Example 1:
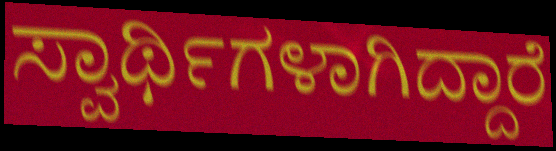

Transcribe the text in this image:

ಸ್ವಾರ್ಥಿಗಳಾಗಿದ್ದಾರೆ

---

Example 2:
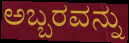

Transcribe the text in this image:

ಅಬ್ಬರವನ್ನು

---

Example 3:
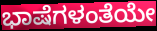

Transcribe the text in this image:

ಭಾಷೆಗಳಂತೆಯೇ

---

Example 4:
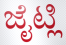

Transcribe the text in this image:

ಜೈಟ್ಲಿ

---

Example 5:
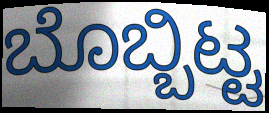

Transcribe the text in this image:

ಬೊಬ್ಬಿಟ್ಟ